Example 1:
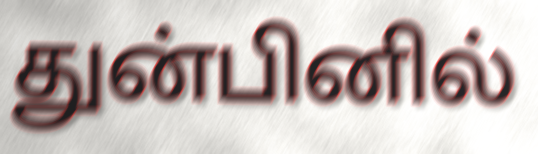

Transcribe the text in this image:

துன்பினில்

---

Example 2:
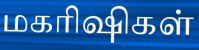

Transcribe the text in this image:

மகரிஷிகள்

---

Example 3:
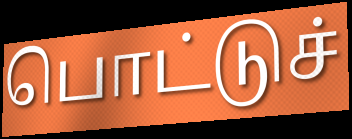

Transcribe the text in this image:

பொட்டுச்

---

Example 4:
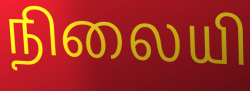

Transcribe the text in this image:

நிலையி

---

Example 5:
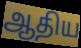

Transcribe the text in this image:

ஆதிய